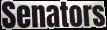
Senators